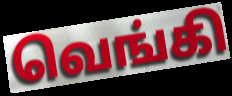
வெங்கி